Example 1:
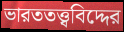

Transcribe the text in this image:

ভারততত্ত্ববিদ্দের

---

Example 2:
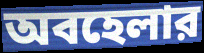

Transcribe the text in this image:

অবহেলার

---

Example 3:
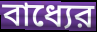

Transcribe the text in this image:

বাধ্যের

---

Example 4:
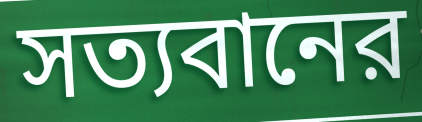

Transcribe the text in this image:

সত্যবানের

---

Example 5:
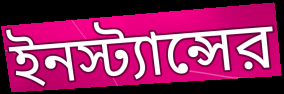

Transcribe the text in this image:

ইনস্ট্যান্সের